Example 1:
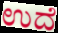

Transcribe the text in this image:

ಉದೆ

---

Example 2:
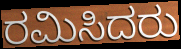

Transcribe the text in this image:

ರಮಿಸಿದರು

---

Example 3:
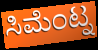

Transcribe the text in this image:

ಸಿಮೆಂಟ್ನ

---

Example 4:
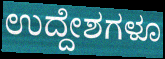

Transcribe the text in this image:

ಉದ್ದೇಶಗಳೂ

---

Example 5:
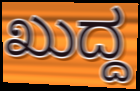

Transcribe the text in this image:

ಖುದ್ದ